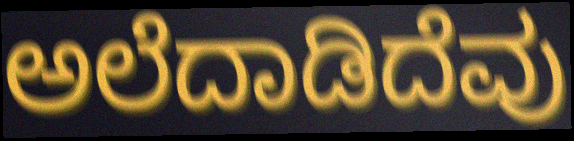
ಅಲೆದಾಡಿದೆವು